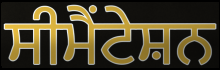
ਸੀਮੈਂਟੇਸ਼ਨ